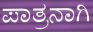
ಪಾತ್ರನಾಗಿ